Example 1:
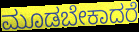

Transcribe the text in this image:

ಮೂಡಬೇಕಾದರೆ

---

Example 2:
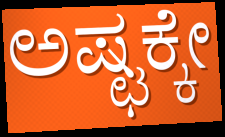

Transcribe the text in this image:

ಅಷ್ಟಕ್ಕೇ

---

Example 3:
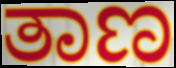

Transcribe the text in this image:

ತಾಣ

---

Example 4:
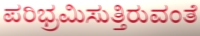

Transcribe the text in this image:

ಪರಿಭ್ರಮಿಸುತ್ತಿರುವಂತೆ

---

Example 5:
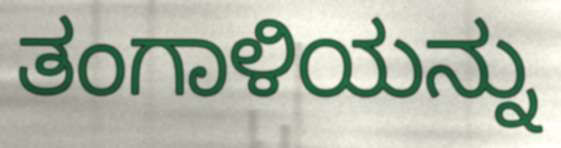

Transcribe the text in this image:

ತಂಗಾಳಿಯನ್ನು